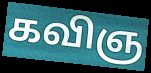
கவிஞ